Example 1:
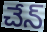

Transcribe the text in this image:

చేన్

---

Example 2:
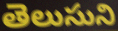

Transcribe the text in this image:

తెలుసుని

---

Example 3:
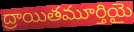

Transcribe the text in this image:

ద్రాయితమూర్తియై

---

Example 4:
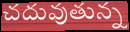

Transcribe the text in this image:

చదువుతున్న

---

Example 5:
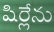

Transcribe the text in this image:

షిర్లేను